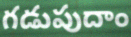
గడుపుదాం